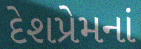
દેશપ્રેમનાં